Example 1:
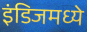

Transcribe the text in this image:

इंडिजमध्ये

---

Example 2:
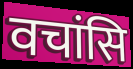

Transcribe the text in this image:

वचांसि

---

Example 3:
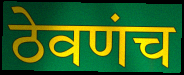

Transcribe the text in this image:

ठेवणंच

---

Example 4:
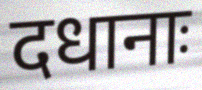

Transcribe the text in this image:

दधानाः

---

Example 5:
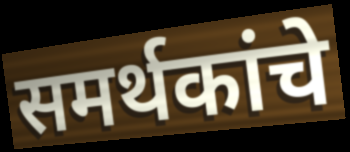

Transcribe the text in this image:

समर्थकांचे